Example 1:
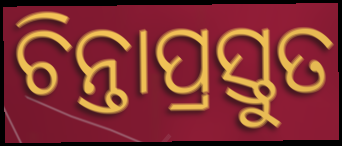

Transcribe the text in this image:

ଚିନ୍ତାପ୍ରସ୍ତୁତ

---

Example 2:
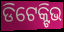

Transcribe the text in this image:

ଡିଟେକ୍ଟିଭ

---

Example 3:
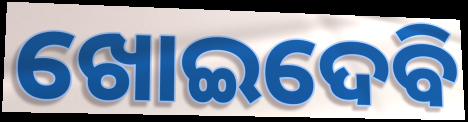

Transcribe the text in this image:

ଖୋଇଦେବି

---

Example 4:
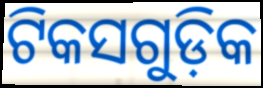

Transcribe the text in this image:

ଟିକସଗୁଡ଼ିକ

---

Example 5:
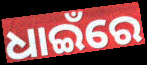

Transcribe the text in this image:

ଧାଇଁରେ